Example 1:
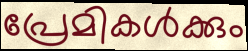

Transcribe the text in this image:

പ്രേമികൾക്കും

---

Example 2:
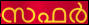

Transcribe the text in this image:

സഫർ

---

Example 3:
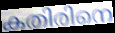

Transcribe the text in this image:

കതിരിനെ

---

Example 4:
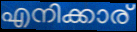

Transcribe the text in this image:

എനിക്കാര്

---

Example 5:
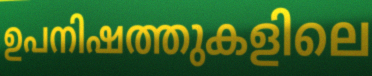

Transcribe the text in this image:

ഉപനിഷത്തുകളിലെ